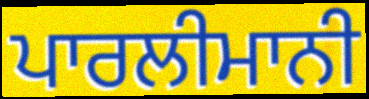
ਪਾਰਲੀਮਾਨੀ